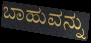
ಬಾಹುವನ್ನು